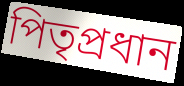
পিতৃপ্ৰধান